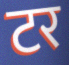
टर